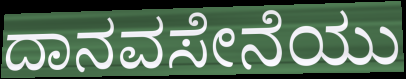
ದಾನವಸೇನೆಯು